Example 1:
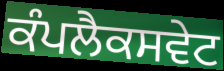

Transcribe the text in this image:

ਕੰਪਲੈਕਸਵੇਟ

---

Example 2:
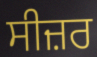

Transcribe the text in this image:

ਸੀਜ਼ਰ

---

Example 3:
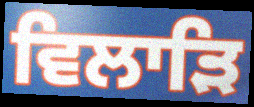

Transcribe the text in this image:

ਵਿਲਾੜਿ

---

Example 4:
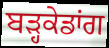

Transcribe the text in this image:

ਬੜ੍ਹਕੇਡਾਂਗ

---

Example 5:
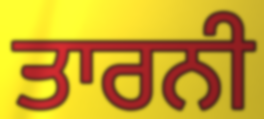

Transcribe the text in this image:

ਤਾਰਨੀ